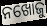
ନଖୋଜୁ